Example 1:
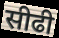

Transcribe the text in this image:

सीढी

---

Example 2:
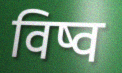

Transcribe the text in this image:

विष्व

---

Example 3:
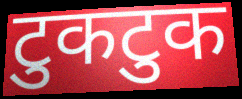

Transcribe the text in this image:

टुकटुक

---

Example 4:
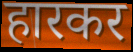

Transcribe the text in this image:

हारकर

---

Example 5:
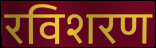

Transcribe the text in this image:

रविशरण